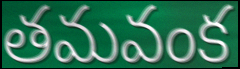
తమవంక